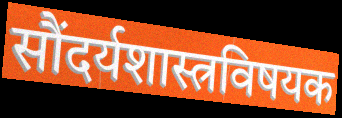
सौंदर्यशास्त्रविषयक